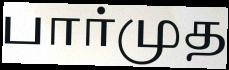
பார்முத